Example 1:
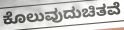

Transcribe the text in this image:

ಕೊಲುವುದುಚಿತವೆ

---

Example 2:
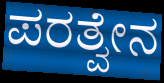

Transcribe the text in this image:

ಪರತ್ವೇನ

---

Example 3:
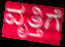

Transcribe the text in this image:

ವೃತ್ತಿಗೆ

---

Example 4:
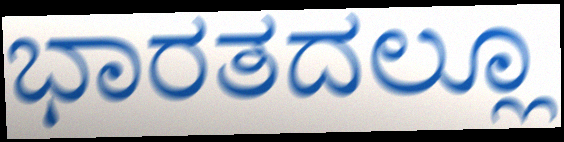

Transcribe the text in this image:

ಭಾರತದಲ್ಲೂ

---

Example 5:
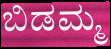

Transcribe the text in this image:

ಬಿಡಮ್ಮ